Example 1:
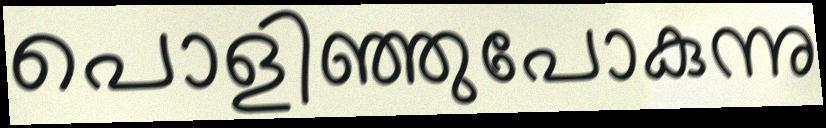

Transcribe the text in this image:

പൊളിഞ്ഞുപോകുന്നു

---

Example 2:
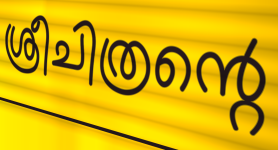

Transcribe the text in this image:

ശ്രീചിത്രന്റെ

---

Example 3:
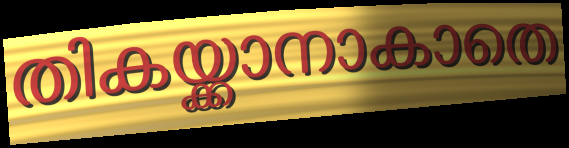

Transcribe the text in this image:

തികയ്ക്കാനാകാതെ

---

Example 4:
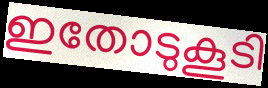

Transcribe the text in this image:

ഇതോടുകൂടി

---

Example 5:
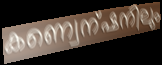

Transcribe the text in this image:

കണ്വെന്ഷനിലും